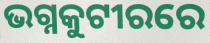
ଭଗ୍ନକୁଟୀରରେ